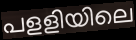
പളളിയിലെ